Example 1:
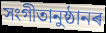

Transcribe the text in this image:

সংগীতানুষ্ঠানৰ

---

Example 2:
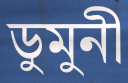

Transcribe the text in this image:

ডুমুনী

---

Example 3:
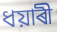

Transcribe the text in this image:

ধয়াৰী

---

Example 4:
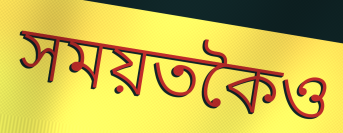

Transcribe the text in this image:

সময়তকৈও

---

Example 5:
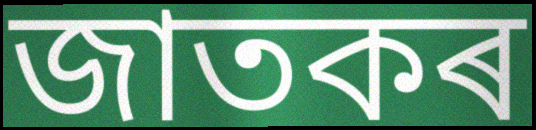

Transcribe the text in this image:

জাতকৰ